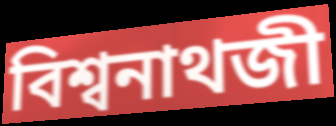
বিশ্বনাথজী